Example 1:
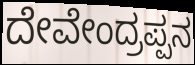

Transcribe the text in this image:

ದೇವೇಂದ್ರಪ್ಪನ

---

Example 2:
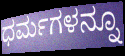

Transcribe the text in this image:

ಧರ್ಮಗಳನ್ನೂ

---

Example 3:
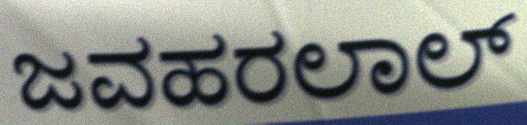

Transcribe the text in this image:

ಜವಹರಲಾಲ್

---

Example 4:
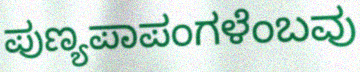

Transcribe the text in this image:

ಪುಣ್ಯಪಾಪಂಗಳೆಂಬವು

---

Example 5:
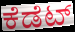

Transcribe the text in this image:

ಕೆಡೆಟ್